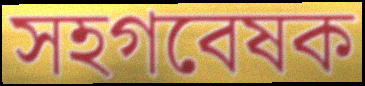
সহগবেষক